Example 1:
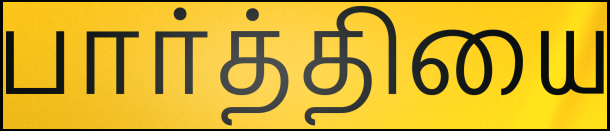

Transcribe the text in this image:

பார்த்தியை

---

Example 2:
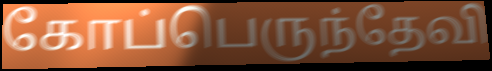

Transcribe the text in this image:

கோப்பெருந்தேவி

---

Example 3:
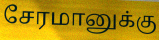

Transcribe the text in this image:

சேரமானுக்கு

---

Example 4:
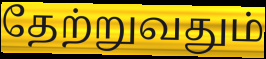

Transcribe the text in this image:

தேற்றுவதும்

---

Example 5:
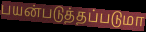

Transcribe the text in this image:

பயன்படுத்தப்படுமா